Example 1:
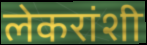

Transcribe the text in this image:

लेकरांशी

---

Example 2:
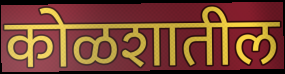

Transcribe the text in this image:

कोळशातील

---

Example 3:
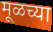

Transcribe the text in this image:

मूळच्या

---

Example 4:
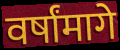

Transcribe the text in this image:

वर्षांमागे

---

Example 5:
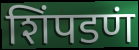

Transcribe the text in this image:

शिंपडणं